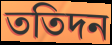
ততিদন